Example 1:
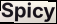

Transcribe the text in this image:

Spicy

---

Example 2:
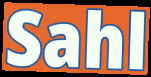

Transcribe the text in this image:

Sahl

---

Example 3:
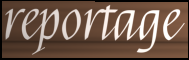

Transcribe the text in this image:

reportage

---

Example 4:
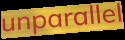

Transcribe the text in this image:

unparallel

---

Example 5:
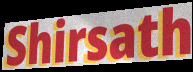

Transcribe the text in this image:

Shirsath